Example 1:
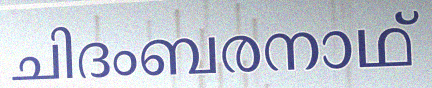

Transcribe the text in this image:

ചിദംബരനാഥ്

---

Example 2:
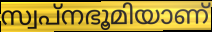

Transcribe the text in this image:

സ്വപ്നഭൂമിയാണ്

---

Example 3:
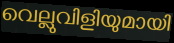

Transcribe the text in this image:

വെല്ലുവിളിയുമായി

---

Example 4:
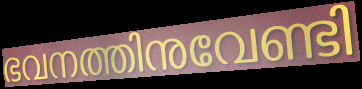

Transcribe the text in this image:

ഭവനത്തിനുവേണ്ടി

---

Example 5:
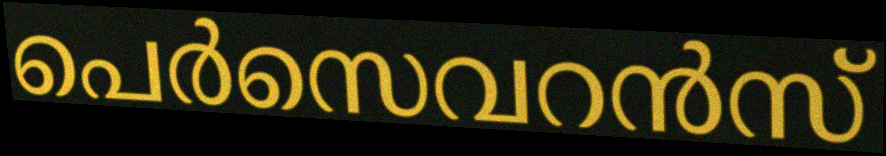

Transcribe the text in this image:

പെർസെവറൻസ്